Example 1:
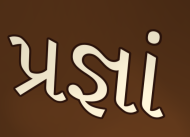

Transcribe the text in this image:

પ્રજ્ઞાં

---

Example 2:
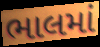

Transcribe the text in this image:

ભાલમાં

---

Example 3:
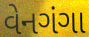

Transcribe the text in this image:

વેનગંગા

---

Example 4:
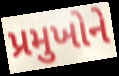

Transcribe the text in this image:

પ્રમુખોને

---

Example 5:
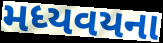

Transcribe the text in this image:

મધ્યવયના